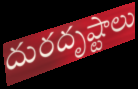
దురదృష్టాలు